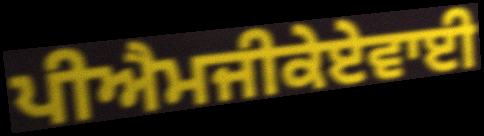
ਪੀਐਮਜੀਕੇਏਵਾਈ